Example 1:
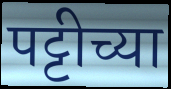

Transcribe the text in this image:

पट्टीच्या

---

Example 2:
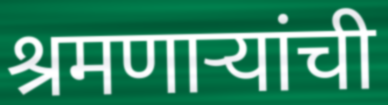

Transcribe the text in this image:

श्रमणाऱ्यांची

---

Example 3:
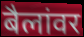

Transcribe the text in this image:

बैलांवर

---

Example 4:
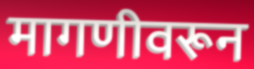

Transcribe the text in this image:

मागणीवरून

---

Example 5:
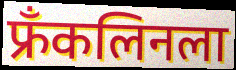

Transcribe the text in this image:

फ्रॅंकलिनला